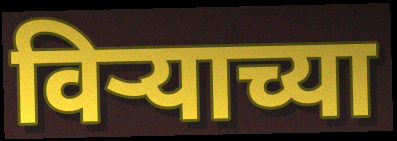
विर्‍याच्या